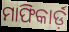
ମାଫିକାର୍ଡ଼